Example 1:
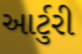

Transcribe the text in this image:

આર્ટુરી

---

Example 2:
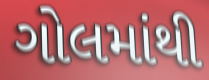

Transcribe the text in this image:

ગોલમાંથી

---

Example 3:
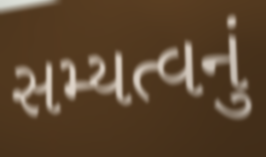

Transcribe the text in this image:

સમ્યત્વનું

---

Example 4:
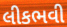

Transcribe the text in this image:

લીકભવી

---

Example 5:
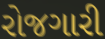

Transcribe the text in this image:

રોજગારી